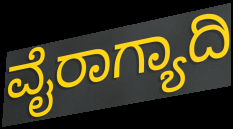
ವೈರಾಗ್ಯಾದಿ